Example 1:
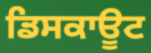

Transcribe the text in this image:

ਡਿਸਕਾਊਟ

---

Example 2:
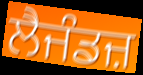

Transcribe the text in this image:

ਲੈਜੰਡਜ਼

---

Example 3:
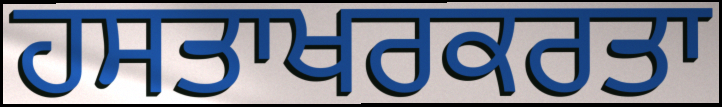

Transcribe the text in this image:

ਹਸਤਾਖਰਕਰਤਾ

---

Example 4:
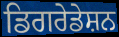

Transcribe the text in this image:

ਡਿਗਰੇਡੇਸ਼ਨ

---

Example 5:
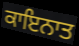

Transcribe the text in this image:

ਕਾਇਨਾਤ